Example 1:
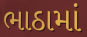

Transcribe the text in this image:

ભાઠામાં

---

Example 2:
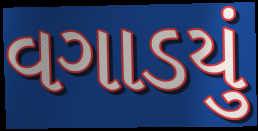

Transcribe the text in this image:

વગાડયું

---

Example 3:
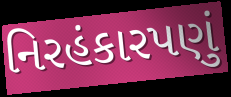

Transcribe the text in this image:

નિરહંકારપણું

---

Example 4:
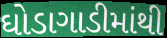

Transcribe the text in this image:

ઘોડાગાડીમાંથી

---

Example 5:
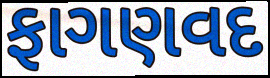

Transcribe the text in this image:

ફાગણવદ